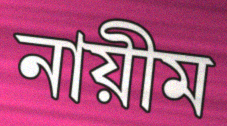
নায়ীম